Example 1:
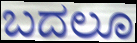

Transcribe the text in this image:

ಬದಲೂ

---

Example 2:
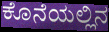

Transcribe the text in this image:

ಕೊನೆಯಲ್ಲಿನ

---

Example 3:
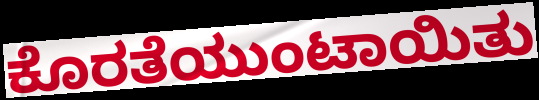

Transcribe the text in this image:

ಕೊರತೆಯುಂಟಾಯಿತು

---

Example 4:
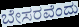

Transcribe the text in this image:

ಬೇಸರವೆಂದು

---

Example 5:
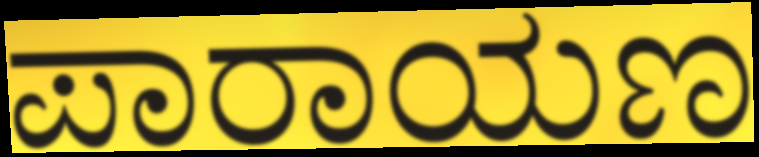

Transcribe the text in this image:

ಪಾರಾಯಣ